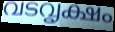
വടവൃക്ഷം